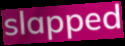
slapped